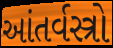
આંતર્વસ્ત્રો